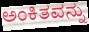
ಅಂಕಿತವನ್ನು